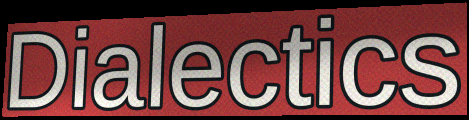
Dialectics